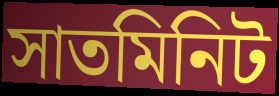
সাতমিনিট